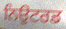
ਨਿਉਟਰਡ